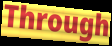
Through